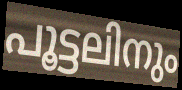
പൂട്ടലിനും